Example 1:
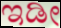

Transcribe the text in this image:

ಇಡೀ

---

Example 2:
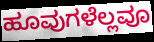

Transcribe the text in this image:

ಹೂವುಗಳೆಲ್ಲವೂ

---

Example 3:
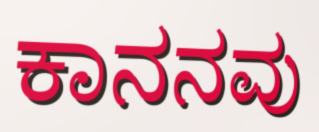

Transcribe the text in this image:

ಕಾನನವು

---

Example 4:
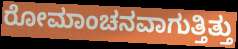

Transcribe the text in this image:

ರೋಮಾಂಚನವಾಗುತ್ತಿತ್ತು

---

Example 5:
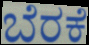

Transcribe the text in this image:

ಬೆರಕೆ